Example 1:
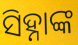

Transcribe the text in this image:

ସିହ୍ନାଙ୍କ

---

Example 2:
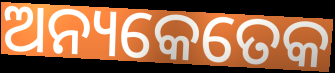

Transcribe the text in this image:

ଅନ୍ୟକେତେକ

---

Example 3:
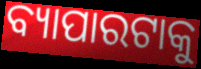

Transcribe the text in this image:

ବ୍ୟାପାରଟାକୁ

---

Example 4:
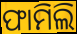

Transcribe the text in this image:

ଫାମିଲି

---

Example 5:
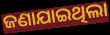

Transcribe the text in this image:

ଜଣାଯାଇଥିଲା